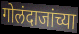
गोलंदाजांच्या